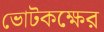
ভোটকক্ষের